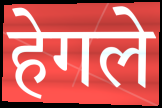
हेगले